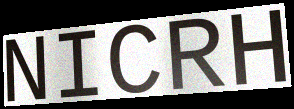
NICRH